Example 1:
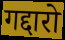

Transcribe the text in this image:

गद्दारो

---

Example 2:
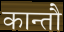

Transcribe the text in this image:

कान्तौ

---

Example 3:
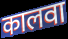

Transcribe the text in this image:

कालवा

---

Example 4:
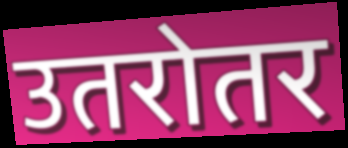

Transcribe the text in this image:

उतरोतर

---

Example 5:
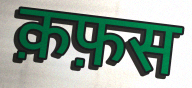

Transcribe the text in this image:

क़फ़स